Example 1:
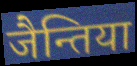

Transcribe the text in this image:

जैन्तिया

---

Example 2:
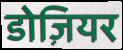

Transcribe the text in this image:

डोज़ियर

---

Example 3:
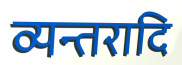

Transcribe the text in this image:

व्यन्तरादि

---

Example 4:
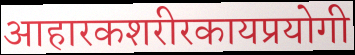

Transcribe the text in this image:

आहारकशरीरकायप्रयोगी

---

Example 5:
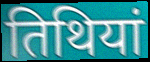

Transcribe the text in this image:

तिथियां